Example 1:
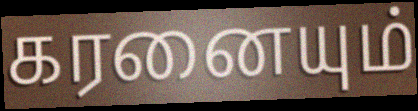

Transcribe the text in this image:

கரனையும்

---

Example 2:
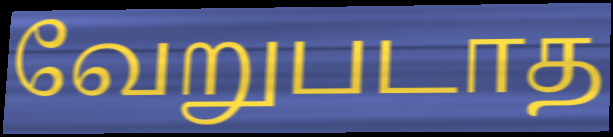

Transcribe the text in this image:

வேறுபடாத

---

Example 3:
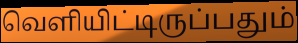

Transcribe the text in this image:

வெளியிட்டிருப்பதும்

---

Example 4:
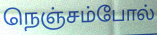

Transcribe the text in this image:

நெஞ்சம்போல்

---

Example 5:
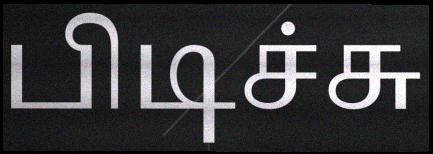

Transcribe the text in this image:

பிடிச்சு